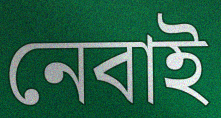
নেবাই